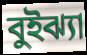
বুইঝ্যা